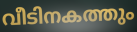
വീടിനകത്തും